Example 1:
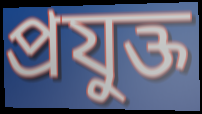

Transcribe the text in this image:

প্রযুক্ত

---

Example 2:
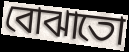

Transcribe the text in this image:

বোঝাতো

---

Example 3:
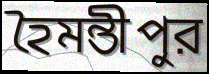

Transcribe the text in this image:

হৈমন্তীপুর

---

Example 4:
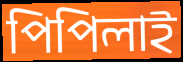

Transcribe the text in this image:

পিপিলাই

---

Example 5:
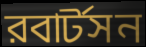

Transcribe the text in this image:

রবার্টসন